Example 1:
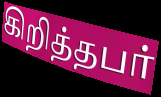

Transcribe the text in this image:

கிறித்தபர்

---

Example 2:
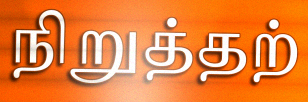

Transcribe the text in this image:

நிறுத்தற்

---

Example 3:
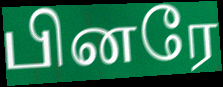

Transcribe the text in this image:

பினரே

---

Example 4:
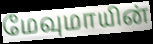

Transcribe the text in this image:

மேவுமாயின்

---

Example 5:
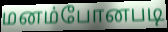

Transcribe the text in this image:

மனம்போனபடி